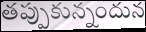
తప్పుకున్నందున